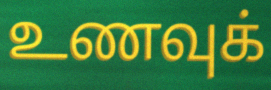
உணவுக்